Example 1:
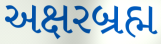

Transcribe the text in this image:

અક્ષરબ્રહ્મ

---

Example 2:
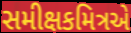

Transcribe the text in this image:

સમીક્ષકમિત્રએ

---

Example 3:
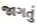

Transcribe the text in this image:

જાગતું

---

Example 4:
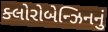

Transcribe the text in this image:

ક્લોરોબેન્ઝિનનું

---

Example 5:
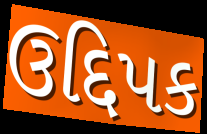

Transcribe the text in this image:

ઉદ્દિપક